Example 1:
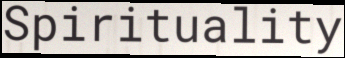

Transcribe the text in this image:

Spirituality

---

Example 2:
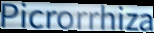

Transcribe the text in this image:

Picrorrhiza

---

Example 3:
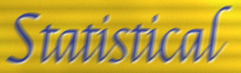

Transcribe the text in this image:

Statistical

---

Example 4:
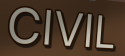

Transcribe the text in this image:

CIVIL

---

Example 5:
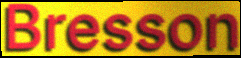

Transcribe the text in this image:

Bresson